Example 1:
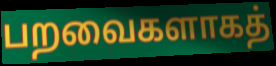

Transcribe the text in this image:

பறவைகளாகத்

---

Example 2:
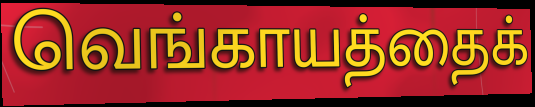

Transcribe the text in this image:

வெங்காயத்தைக்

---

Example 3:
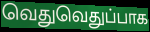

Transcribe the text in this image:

வெதுவெதுப்பாக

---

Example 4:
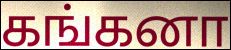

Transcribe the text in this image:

கங்கனா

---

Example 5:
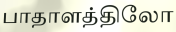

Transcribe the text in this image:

பாதாளத்திலோ